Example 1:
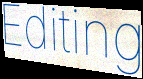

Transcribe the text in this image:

Editing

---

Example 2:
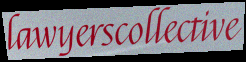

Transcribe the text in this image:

lawyerscollective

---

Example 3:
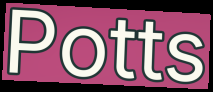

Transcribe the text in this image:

Potts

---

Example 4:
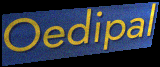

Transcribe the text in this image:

Oedipal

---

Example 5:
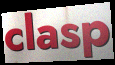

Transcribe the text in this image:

clasp